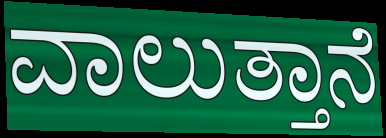
ವಾಲುತ್ತಾನೆ